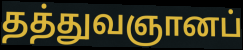
தத்துவஞானப்